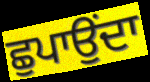
ਛੁਪਾਉਂਦਾ